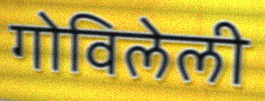
गोविलेली